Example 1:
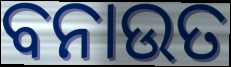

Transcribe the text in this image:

ବନାଉତ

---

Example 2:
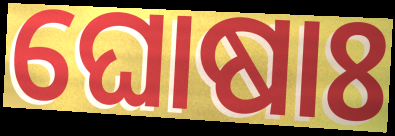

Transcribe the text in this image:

ଘୋଷାଃ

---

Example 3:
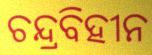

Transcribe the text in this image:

ଚନ୍ଦ୍ରବିହୀନ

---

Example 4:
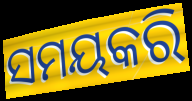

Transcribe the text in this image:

ସମୟକରି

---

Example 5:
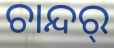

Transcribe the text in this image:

ଚାନ୍ଦର୍